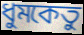
ধুমকেতু